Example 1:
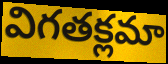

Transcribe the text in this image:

విగతక్లమా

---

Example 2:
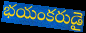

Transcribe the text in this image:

భయంకరుడై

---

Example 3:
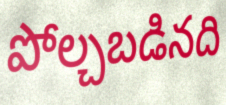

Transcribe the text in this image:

పోల్చబడినది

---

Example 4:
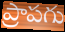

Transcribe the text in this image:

ప్రాపగు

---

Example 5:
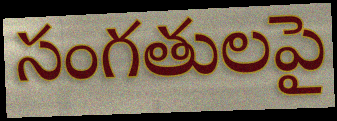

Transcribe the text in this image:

సంగతులపై